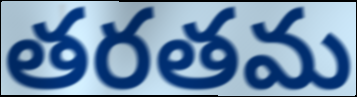
తరతమ